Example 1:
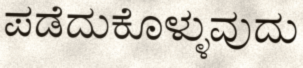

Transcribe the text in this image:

ಪಡೆದುಕೊಳ್ಳುವುದು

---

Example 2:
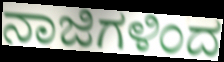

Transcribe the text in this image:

ನಾಜಿಗಳಿಂದ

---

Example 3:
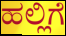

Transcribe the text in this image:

ಹಲ್ಲಿಗೆ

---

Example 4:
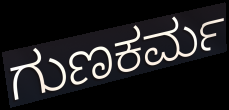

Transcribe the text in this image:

ಗುಣಕರ್ಮ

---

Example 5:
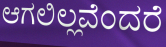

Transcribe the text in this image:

ಆಗಲಿಲ್ಲವೆಂದರೆ